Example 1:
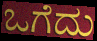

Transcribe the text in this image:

ಒಗೆದು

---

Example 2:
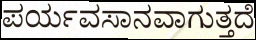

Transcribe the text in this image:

ಪರ್ಯವಸಾನವಾಗುತ್ತದೆ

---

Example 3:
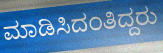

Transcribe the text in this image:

ಮಾಡಿಸಿದಂತಿದ್ದರು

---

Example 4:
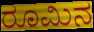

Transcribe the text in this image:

ರೂಮಿನ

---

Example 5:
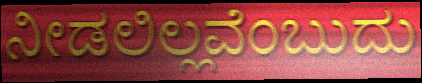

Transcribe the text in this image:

ನೀಡಲಿಲ್ಲವೆಂಬುದು